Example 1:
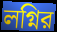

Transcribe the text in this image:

লগ্নির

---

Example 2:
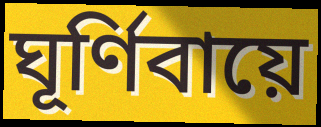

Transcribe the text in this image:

ঘূর্ণিবায়ে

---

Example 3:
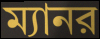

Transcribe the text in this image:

ম্যানর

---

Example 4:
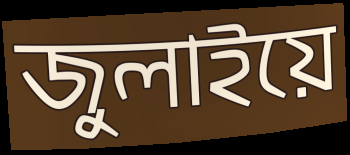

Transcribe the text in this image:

জুলাইয়ে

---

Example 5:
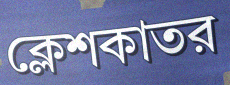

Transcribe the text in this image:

ক্লেশকাতর